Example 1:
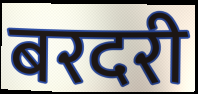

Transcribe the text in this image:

बरदरी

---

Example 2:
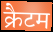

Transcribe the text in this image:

क्रैटम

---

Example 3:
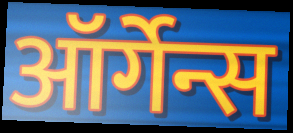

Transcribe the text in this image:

ऑर्गेन्स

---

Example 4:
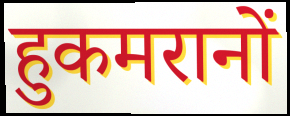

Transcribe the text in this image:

हुकमरानों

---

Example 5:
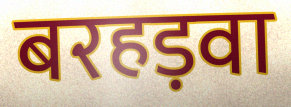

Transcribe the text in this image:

बरहड़वा